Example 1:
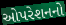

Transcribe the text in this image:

ઓપરેશનનો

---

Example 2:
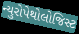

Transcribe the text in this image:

ન્યુરોપેથોલોજિસ્ટ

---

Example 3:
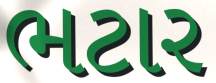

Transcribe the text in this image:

ભટાર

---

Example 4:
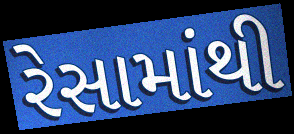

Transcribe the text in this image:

રેસામાંથી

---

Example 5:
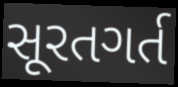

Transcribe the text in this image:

સૂરતગર્ત